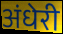
अंधेरी